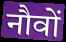
नौवों